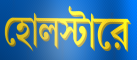
হোলস্টারে